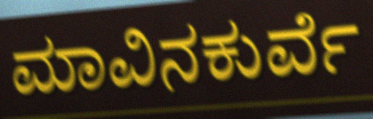
ಮಾವಿನಕುರ್ವೆ